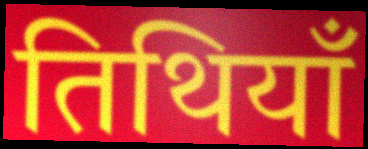
तिथियाँ